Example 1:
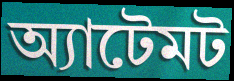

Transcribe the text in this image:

অ্যাটেমট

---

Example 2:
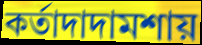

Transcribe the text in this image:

কর্তাদাদামশায়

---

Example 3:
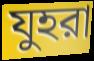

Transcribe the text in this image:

যুহরা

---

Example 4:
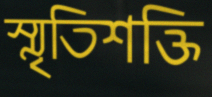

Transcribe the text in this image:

স্মৃতিশক্তি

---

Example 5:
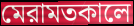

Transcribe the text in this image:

মেরামতকালে